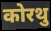
कोरथु